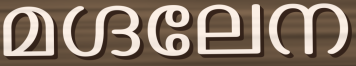
മഗ്ദലേന